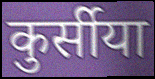
कुर्सीया